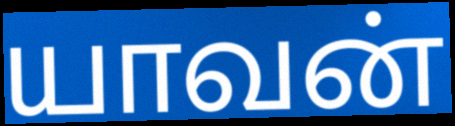
யாவன்